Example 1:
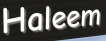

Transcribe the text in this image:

Haleem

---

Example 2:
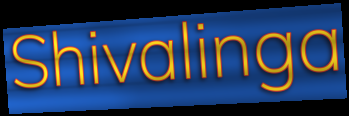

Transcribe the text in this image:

Shivalinga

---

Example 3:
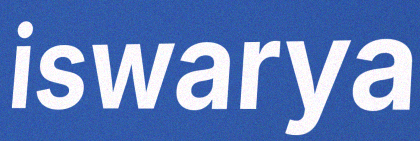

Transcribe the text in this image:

iswarya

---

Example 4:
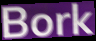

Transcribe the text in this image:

Bork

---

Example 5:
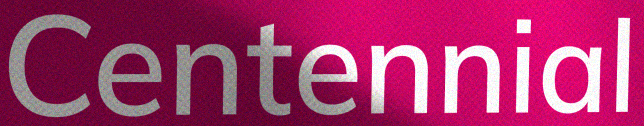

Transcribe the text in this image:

Centennial